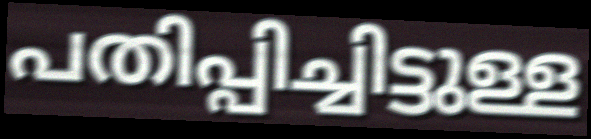
പതിപ്പിച്ചിട്ടുള്ള